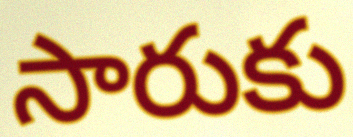
సారుకు